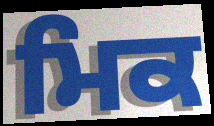
ਮਿਕ